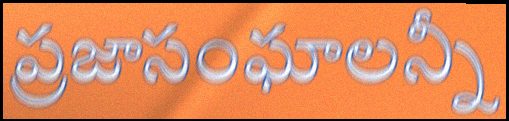
ప్రజాసంఘాలన్నీ